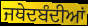
ਜਥੇਦਬੰਦੀਆਂ